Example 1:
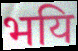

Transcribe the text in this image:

भयि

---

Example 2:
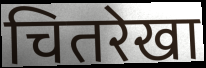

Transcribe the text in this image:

चितरेखा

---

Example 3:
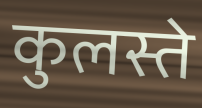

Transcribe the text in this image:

कुलस्ते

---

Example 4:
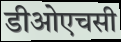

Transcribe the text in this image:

डीओएचसी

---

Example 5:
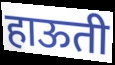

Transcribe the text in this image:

हाऊती